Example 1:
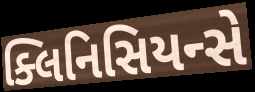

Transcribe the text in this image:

ક્લિનિસિયન્સે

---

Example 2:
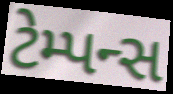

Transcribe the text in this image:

ટેમ્પન્સ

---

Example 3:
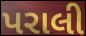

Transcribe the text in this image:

પરાલી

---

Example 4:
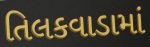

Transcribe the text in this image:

તિલકવાડામાં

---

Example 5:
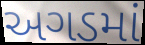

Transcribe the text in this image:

અગડમાં